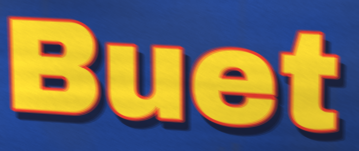
Buet